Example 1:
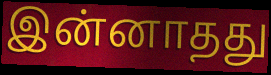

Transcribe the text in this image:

இன்னாதது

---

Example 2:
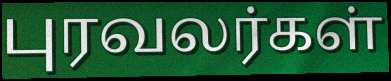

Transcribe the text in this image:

புரவலர்கள்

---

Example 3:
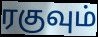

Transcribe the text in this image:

ரகுவும்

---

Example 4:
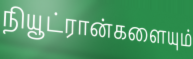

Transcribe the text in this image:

நியூட்ரான்களையும்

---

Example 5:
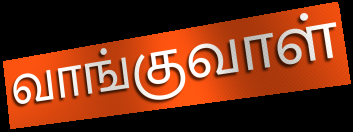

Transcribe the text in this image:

வாங்குவாள்